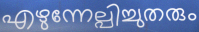
എഴുന്നേല്പിച്ചുതരും